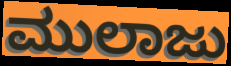
ಮುಲಾಜು